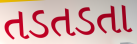
તડતડતા